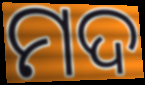
ମଦ